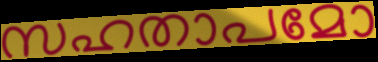
സഹതാപമോ